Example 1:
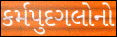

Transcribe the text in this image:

કર્મપુદગલોનો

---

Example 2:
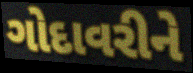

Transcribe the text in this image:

ગોદાવરીને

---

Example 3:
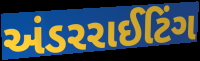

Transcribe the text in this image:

અંડરરાઈટિંગ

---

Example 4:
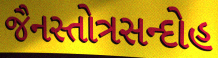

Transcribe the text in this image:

જૈનસ્તોત્રસન્દોહ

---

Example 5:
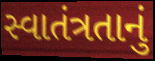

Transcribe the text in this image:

સ્વાતંત્રતાનું